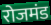
रोजमंड